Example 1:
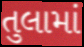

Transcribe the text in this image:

તુલામાં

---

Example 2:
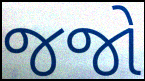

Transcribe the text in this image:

જજો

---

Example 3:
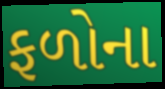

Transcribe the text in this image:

ફળોના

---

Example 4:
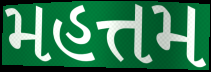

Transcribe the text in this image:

મહત્તમ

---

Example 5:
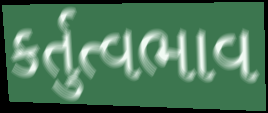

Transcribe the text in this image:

કર્તુત્વભાવ